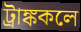
ট্রাঙ্ককলে